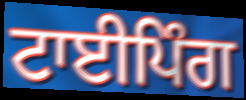
ਟਾਈਪਿੰਗ